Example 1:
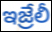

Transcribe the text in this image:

ఇజ్రేలీ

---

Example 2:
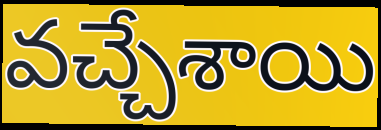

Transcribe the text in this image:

వచ్చేశాయి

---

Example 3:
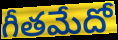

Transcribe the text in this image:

గీతమేదో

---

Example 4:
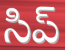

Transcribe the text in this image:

సిప్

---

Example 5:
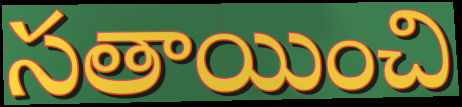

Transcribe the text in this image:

సతాయించి